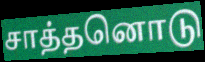
சாத்தனொடு